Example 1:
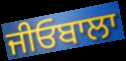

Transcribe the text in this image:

ਜੀਓਬਾਲਾ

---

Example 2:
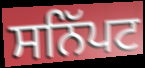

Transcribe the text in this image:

ਸਨਿੱਪਟ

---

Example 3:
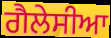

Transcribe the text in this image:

ਗੈਲੇਸੀਆ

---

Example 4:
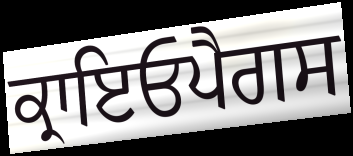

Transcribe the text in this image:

ਕ੍ਰਾਇਓਪੈਗਸ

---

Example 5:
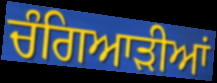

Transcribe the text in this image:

ਚੰਗਿਆੜੀਆਂ